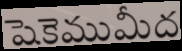
షెకెముమీద